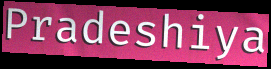
Pradeshiya